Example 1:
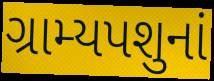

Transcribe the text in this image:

ગ્રામ્યપશુનાં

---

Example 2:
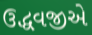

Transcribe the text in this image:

ઉદ્ધવજીએ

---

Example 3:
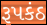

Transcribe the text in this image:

રૂપકંઠ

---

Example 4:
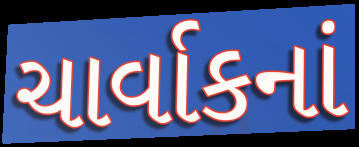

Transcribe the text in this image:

ચાર્વાકનાં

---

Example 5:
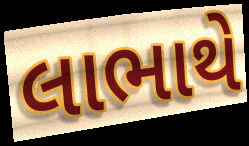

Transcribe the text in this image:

લાભાથે